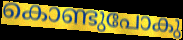
കൊണ്ടുപോകു